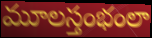
మూలస్తంభంలా